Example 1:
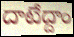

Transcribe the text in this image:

దాటేద్దాం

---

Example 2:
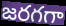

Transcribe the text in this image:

జరగగా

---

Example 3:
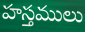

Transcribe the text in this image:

హస్తములు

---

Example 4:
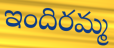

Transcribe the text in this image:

ఇందిరమ్మ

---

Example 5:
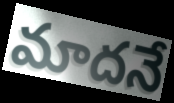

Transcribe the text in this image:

మాదనే